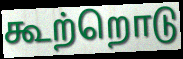
கூற்றொடு